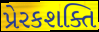
પ્રેરકશક્તિ